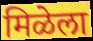
मिळेला